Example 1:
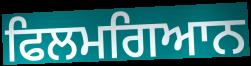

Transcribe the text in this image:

ਫਿਲਮਗਿਆਨ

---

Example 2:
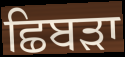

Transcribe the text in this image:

ਛਿਬੜਾ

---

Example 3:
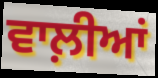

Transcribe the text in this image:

ਵਾਲ਼ੀਆਂ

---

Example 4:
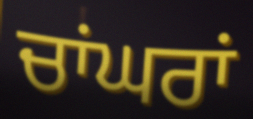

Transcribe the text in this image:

ਚਾਂਘਰਾਂ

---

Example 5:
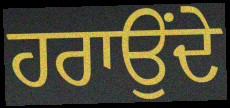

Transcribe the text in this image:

ਹਰਾਉਂਦੇ